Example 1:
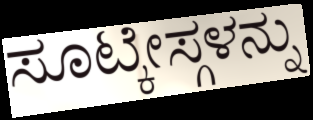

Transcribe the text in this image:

ಸೂಟ್ಕೇಸ್ಗಳನ್ನು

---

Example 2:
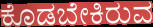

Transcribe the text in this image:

ಕೊಡಬೇಕಿರುವ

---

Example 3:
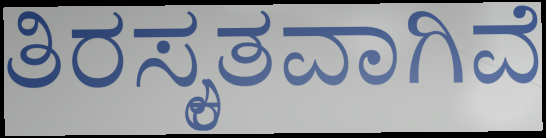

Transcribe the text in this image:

ತಿರಸ್ಕೃತವಾಗಿವೆ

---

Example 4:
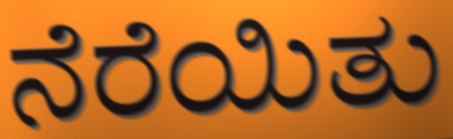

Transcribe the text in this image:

ನೆರೆಯಿತು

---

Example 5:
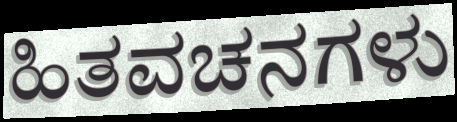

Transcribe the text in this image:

ಹಿತವಚನಗಳು